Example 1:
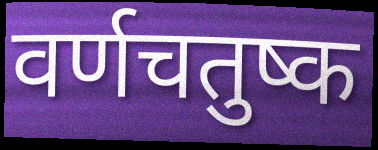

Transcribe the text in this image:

वर्णचतुष्क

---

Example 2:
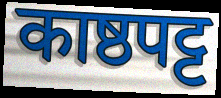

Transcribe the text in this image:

काष्ठपट्ट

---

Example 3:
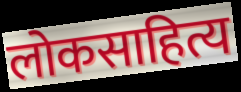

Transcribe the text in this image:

लोकसाहित्य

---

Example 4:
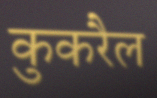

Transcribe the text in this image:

कुकरैल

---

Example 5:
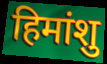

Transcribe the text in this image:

हिमांशु